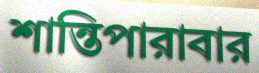
শান্তিপারাবার